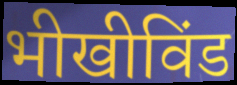
भीखीविंड